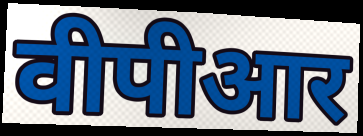
वीपीआर